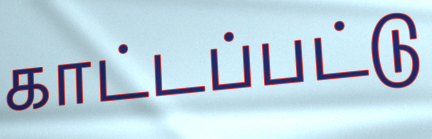
காட்டப்பட்டு